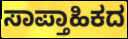
ಸಾಪ್ತಾಹಿಕದ